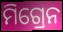
ମିଗ୍ରେନ